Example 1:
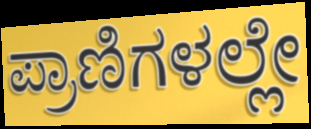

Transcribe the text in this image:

ಪ್ರಾಣಿಗಳಲ್ಲೇ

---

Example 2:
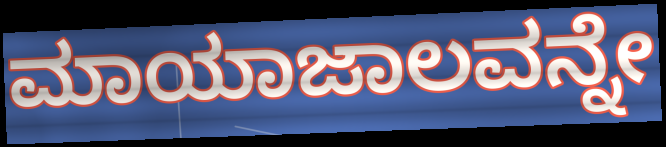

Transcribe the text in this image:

ಮಾಯಾಜಾಲವನ್ನೇ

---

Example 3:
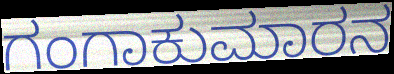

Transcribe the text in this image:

ಗಂಗಾಕುಮಾರನ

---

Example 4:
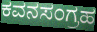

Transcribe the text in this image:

ಕವನಸಂಗ್ರಹ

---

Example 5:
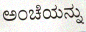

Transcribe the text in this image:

ಅಂಚೆಯನ್ನು